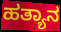
ಹತ್ಯಾನ